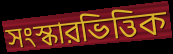
সংস্কারভিত্তিক